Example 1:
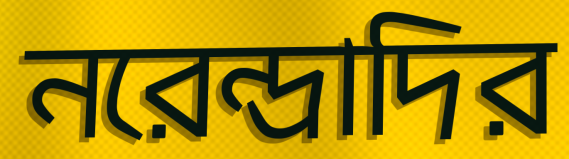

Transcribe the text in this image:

নরেন্দ্রাদির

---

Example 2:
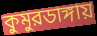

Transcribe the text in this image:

কুমুরডাঙ্গায়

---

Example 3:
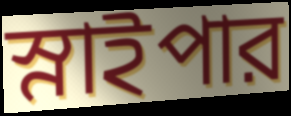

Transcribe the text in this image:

স্নাইপার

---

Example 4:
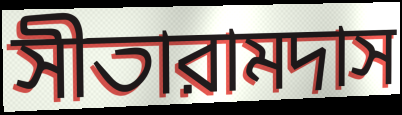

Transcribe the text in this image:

সীতারামদাস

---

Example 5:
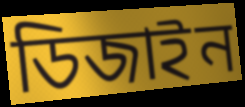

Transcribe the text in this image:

ডিজাইন